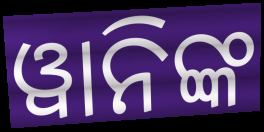
ୱାନିଙ୍କ